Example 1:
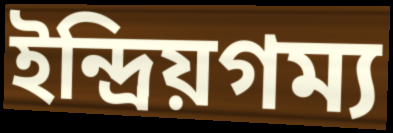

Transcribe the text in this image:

ইন্দ্রিয়গম্য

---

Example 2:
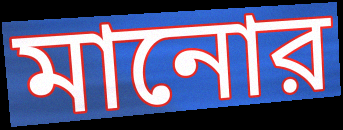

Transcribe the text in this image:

মানোর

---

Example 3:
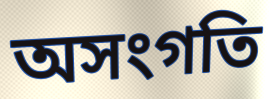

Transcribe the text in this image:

অসংগতি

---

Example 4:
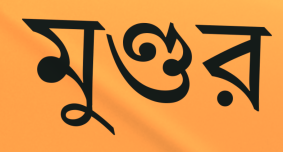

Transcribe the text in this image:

মুণ্ডর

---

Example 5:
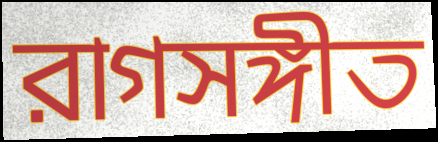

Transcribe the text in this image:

রাগসঙ্গীত